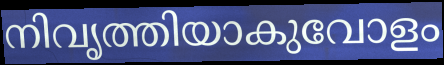
നിവൃത്തിയാകുവോളം